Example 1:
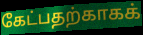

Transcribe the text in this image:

கேட்பதற்காகக்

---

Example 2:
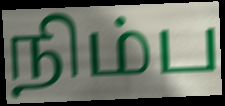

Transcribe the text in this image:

நிம்ப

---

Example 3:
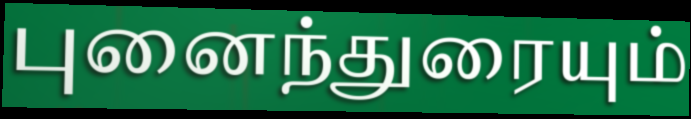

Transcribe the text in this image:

புனைந்துரையும்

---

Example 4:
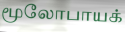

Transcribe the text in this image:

மூலோபாயக்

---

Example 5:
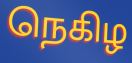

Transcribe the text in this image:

நெகிழ